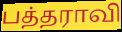
பத்தராவி